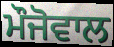
ਮੌਜੋਵਾਲ